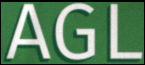
AGL